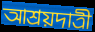
আশ্রয়দাত্রী